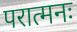
परात्मनः